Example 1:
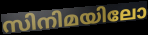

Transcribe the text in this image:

സിനിമയിലോ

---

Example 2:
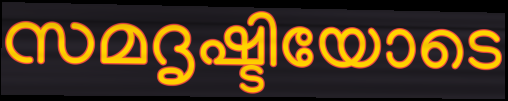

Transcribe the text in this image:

സമദൃഷ്ടിയോടെ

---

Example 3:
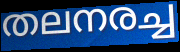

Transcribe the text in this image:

തലനരച്ച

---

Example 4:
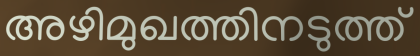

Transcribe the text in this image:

അഴിമുഖത്തിനടുത്ത്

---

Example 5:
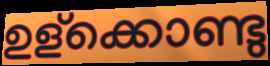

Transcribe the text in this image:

ഉള്ക്കൊണ്ടു